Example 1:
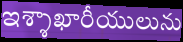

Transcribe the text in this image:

ఇశ్శాఖారీయులును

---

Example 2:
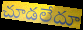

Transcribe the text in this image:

చూడలేదూ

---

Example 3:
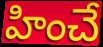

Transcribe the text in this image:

హించే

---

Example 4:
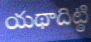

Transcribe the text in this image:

యథాదిట్ఠి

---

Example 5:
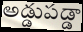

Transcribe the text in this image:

అడ్డుపడ్డా